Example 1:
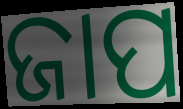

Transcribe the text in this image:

ଜାପ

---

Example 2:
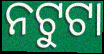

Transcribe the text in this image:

ନଟୁଟା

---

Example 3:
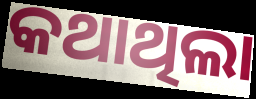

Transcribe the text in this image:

କଥାଥିଲା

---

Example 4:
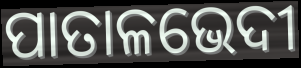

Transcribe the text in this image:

ପାତାଳଭେଦୀ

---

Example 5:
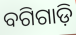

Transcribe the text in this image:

ବଗିଗାଡ଼ି